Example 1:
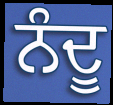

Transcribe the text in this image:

ਨੰਦੂ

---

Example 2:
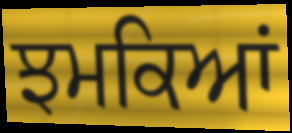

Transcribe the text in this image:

ਝਮਕਿਆਂ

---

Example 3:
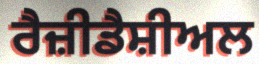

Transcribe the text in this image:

ਰੈਜ਼ੀਡੈਸ਼ੀਅਲ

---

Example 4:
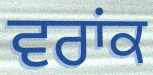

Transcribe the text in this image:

ਵਰਾਂਕ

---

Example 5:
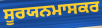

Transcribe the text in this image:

ਸੂਰਯਨਮਾਸਕਰ